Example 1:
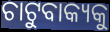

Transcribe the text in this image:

ଚାଟୁବାକ୍ୟକୁ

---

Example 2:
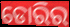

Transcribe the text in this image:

ଡୋରିର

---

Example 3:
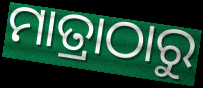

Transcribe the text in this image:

ମାତ୍ରାଠାରୁ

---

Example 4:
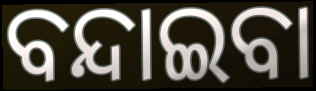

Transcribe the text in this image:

ବନ୍ଦାଇବା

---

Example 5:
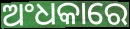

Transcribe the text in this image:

ଅଂଧକାରେ